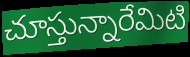
చూస్తున్నారేమిటి